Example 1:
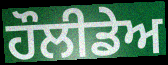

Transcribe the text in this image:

ਹੌਲੀਡੇਅ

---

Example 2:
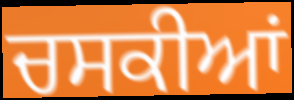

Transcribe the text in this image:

ਚਸਕੀਆਂ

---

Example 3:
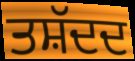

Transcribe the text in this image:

ਤਸ਼ੱਦਦ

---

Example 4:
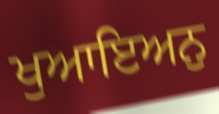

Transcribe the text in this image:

ਖੁਆਇਅਨੁ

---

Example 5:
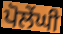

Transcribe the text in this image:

ਪੋਲੇਂਘੀ